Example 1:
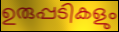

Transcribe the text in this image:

ഉരുപ്പടികളും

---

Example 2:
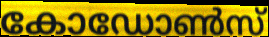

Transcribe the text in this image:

കോഡോൺസ്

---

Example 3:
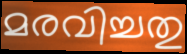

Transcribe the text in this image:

മരവിച്ചതു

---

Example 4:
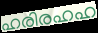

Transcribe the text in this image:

ഹരിരഹഹ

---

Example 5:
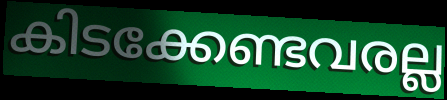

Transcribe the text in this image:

കിടക്കേണ്ടവരല്ല